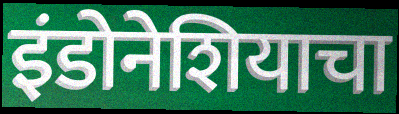
इंडोनेशियाचा